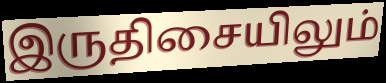
இருதிசையிலும்